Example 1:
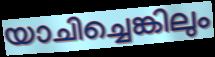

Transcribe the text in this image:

യാചിച്ചെങ്കിലും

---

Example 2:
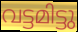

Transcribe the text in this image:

വട്ടമിട്ടു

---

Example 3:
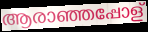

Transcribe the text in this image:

ആരാഞ്ഞപ്പോള്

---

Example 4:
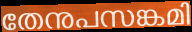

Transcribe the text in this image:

തേനുപസങ്കമി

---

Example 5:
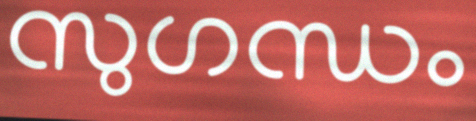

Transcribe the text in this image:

സുഗന്ധം